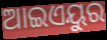
ଆଇଏୟୁର